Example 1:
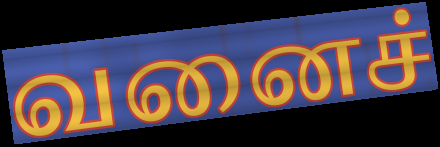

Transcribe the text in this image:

வனைச்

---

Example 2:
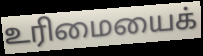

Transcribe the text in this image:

உரிமையைக்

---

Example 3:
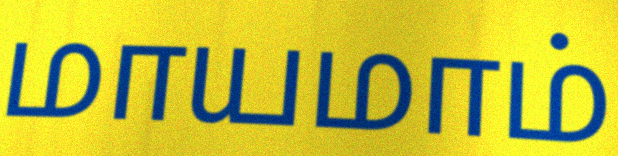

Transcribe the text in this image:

மாயமாம்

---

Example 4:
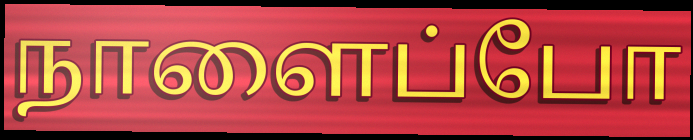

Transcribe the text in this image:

நாளைப்போ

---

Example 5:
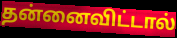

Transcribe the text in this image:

தன்னைவிட்டால்